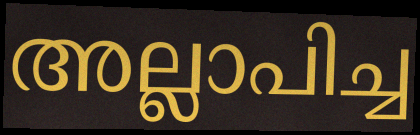
അല്ലാപിച്ച